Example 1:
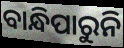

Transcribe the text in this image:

ବାନ୍ଧିପାରୁନି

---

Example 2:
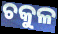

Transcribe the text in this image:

ଚକୁଳ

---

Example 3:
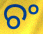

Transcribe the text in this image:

ଚଂ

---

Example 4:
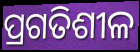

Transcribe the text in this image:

ପ୍ରଗତିଶୀଳ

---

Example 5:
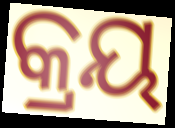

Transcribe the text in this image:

କ୍ରୟ